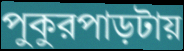
পুকুরপাড়টায়